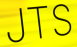
JTS